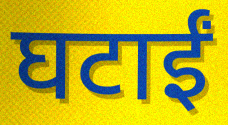
घटाईं